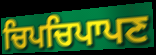
ਚਿਪਚਿਪਾਪਣ